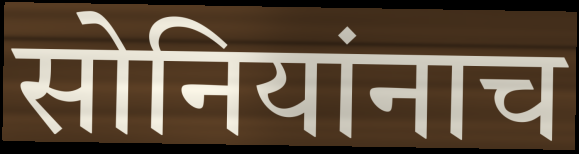
सोनियांनाच